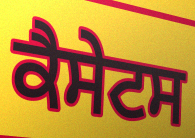
ਕੈਸੇਟਸ